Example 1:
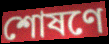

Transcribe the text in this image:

শোষণে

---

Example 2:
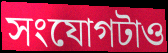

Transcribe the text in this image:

সংযোগটাও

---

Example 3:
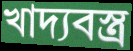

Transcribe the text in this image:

খাদ্যবস্ত্র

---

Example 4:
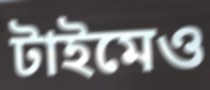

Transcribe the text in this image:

টাইমেও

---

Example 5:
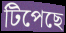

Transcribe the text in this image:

টিপেছে